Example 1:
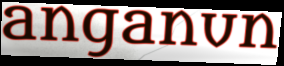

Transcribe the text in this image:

anganun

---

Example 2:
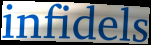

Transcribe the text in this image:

infidels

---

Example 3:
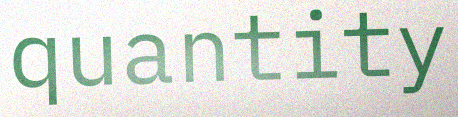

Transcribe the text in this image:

quantity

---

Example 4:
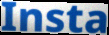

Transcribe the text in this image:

Insta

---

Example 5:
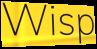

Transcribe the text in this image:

Wisp